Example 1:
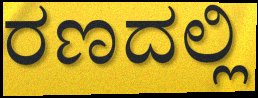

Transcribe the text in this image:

ರಣದಲ್ಲಿ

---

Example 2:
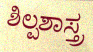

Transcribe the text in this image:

ಶಿಲ್ಪಶಾಸ್ತ್ರ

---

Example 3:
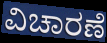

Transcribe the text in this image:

ವಿಚಾರಣೆ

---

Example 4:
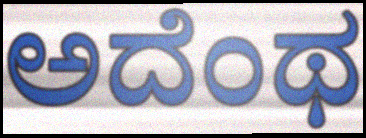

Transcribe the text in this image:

ಅದೆಂಥ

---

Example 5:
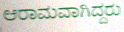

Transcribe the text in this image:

ಆರಾಮವಾಗಿದ್ದರು